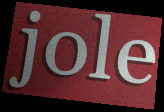
jole